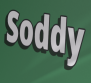
Soddy